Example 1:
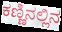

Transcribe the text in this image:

ಕಣ್ಣಿನಲ್ಲಿನ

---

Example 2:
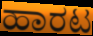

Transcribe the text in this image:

ಹಾರಟ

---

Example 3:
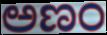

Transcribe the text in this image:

ಅಣಂ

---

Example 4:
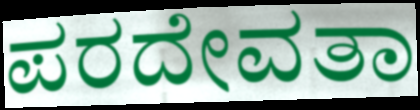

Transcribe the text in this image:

ಪರದೇವತಾ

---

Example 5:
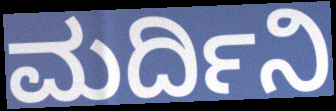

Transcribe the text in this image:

ಮರ್ದಿನಿ